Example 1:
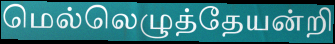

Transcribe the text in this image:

மெல்லெழுத்தேயன்றி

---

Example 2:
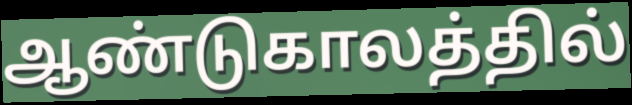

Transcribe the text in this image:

ஆண்டுகாலத்தில்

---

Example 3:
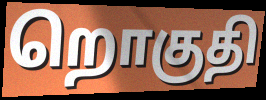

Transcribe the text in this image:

றொகுதி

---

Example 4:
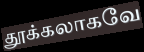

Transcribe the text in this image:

தூக்கலாகவே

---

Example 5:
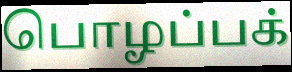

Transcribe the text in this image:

பொழப்பக்